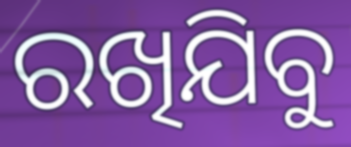
ରଖିଯିବୁ